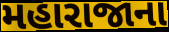
મહારાજાના